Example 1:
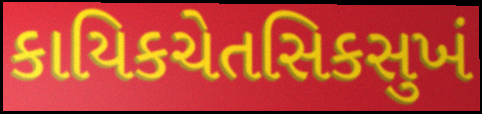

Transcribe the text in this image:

કાયિકચેતસિકસુખં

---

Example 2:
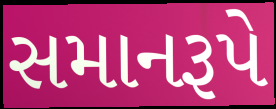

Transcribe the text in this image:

સમાનરૂપે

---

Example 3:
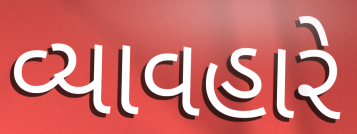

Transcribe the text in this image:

વ્યાવહારે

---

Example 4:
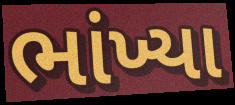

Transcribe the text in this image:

ભાંખ્યા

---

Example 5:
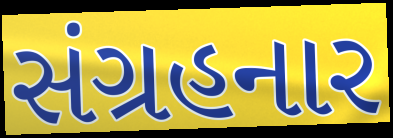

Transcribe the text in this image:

સંગ્રહનાર